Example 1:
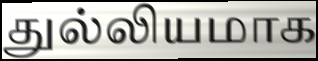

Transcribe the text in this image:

துல்லியமாக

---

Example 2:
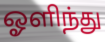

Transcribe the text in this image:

ஓளிந்து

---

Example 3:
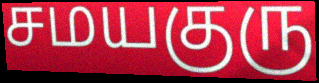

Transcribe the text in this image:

சமயகுரு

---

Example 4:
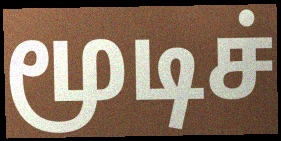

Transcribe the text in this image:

மூடிச்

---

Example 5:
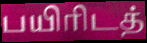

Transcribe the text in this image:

பயிரிடத்